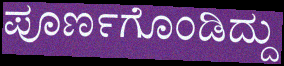
ಪೂರ್ಣಗೊಂಡಿದ್ದು